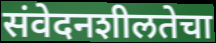
संवेदनशीलतेचा